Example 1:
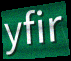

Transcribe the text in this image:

yfir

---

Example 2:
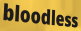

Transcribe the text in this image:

bloodless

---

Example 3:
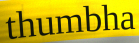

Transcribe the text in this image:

thumbha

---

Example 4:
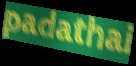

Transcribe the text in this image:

padathai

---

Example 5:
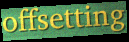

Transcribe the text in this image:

offsetting